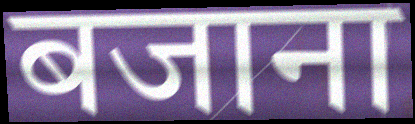
बजाना